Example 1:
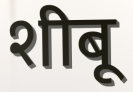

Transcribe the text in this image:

शीबू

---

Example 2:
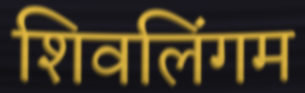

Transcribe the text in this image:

शिवलिंगम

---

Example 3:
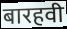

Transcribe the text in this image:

बारहवी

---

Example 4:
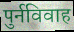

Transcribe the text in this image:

पुर्नविवाह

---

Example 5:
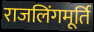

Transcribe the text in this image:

राजलिंगमूर्ति